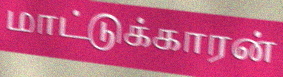
மாட்டுக்காரன்